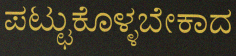
ಪಟ್ಟುಕೊಳ್ಳಬೇಕಾದ